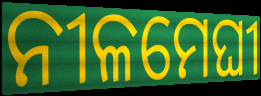
ନୀଳମେଘୀ